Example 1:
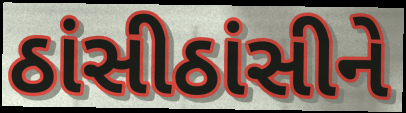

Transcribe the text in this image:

ઠાંસીઠાંસીને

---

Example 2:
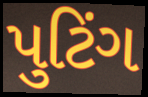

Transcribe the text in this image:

પુટિંગ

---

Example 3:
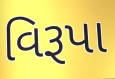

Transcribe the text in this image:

વિરૂપા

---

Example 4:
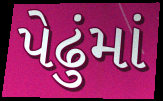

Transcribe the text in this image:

પેઢુંમાં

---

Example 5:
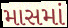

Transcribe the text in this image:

માસમાં